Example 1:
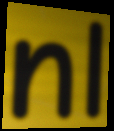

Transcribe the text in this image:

nl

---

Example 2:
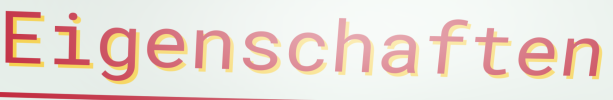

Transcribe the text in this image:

Eigenschaften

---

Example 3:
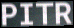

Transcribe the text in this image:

PITR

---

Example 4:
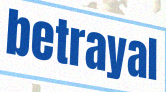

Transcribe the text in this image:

betrayal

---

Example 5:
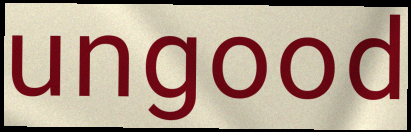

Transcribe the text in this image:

ungood